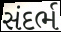
સંદર્ભ